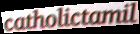
catholictamil